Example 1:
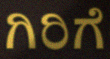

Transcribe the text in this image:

ಗಿರಿಗೆ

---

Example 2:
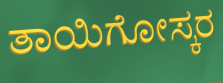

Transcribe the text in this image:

ತಾಯಿಗೋಸ್ಕರ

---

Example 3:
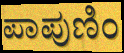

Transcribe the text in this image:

ಪಾಪುಣಿಂ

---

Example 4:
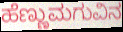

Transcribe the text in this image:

ಹೆಣ್ಣುಮಗುವಿನ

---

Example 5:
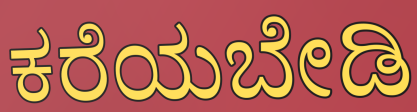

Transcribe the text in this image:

ಕರೆಯಬೇಡಿ